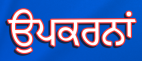
ਉਪਕਰਨਾਂ